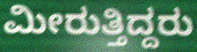
ಮೀರುತ್ತಿದ್ದರು